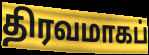
திரவமாகப்